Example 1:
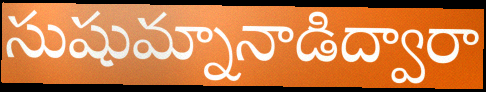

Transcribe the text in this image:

సుషుమ్నానాడిద్వారా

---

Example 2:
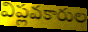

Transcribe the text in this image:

విప్లవకారుల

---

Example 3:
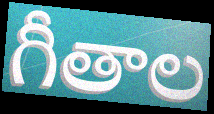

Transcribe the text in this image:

గీతాల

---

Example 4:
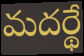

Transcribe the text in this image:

మదర్థే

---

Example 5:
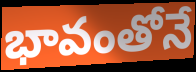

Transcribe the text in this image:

భావంతోనే